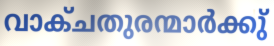
വാക്ചതുരന്മാർക്കു്